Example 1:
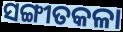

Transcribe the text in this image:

ସଙ୍ଗୀତକଳା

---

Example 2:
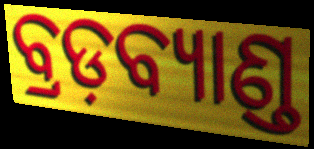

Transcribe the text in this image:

ବ୍ରଡ଼ବ୍ୟାଣ୍ଡ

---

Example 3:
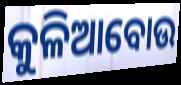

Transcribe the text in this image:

କୁଳିଆବୋଉ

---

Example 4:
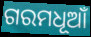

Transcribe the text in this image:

ଗରମଧୂଆଁ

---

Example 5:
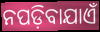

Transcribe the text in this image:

ନପଡ଼ିବାଯାଏଁ